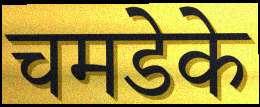
चमडेके